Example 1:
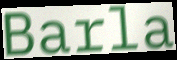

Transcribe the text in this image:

Barla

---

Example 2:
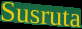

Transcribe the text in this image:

Susruta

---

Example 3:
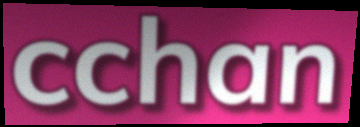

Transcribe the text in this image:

cchan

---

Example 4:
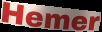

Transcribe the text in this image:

Hemer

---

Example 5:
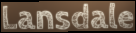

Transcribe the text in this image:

Lansdale